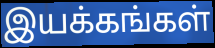
இயக்கங்கள்